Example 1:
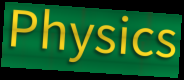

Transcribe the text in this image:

Physics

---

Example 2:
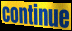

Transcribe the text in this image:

continue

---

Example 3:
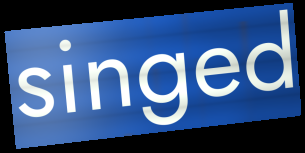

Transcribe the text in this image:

singed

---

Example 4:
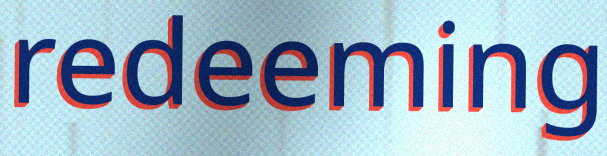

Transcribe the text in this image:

redeeming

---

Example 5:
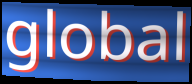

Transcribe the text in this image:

global